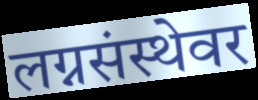
लग्नसंस्थेवर